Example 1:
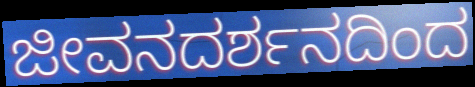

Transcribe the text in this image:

ಜೀವನದರ್ಶನದಿಂದ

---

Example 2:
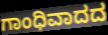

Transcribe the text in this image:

ಗಾಂಧಿವಾದದ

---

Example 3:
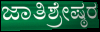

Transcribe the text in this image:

ಜಾತಿಶ್ರೇಷ್ಠರ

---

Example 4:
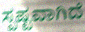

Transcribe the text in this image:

ಸ್ಪಷ್ಟವಾಗಿದೆ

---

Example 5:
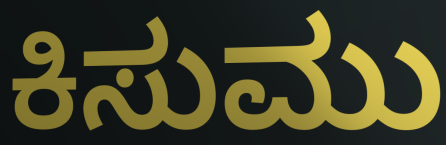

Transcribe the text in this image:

ಕಿಸುಮು